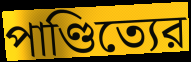
পাণ্ডিত্যের